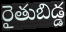
రైతుబిడ్డ